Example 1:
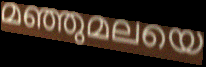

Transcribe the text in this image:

മഞ്ഞുമലയെ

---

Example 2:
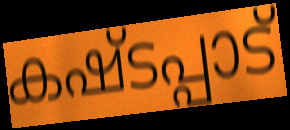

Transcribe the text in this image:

കഷ്ടപ്പാട്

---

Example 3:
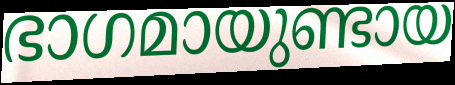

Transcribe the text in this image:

ഭാഗമായുണ്ടായ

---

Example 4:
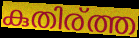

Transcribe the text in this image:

കുതിര്ത്ത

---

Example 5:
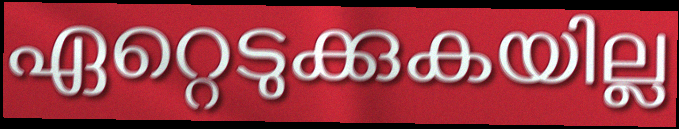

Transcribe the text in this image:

ഏറ്റെടുക്കുകയില്ല